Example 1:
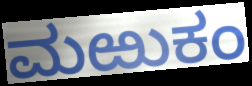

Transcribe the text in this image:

ಮಱುಕಂ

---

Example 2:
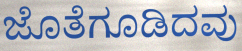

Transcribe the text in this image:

ಜೊತೆಗೂಡಿದವು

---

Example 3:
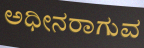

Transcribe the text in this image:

ಅಧೀನರಾಗುವ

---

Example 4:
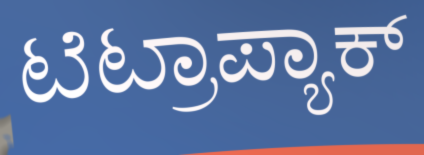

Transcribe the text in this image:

ಟೆಟ್ರಾಪ್ಯಾಕ್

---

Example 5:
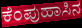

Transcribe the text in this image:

ಕೆಂಪುಹಾಸಿನ